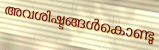
അവശിഷ്ടങ്ങൾകൊണ്ടു